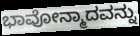
ಭಾವೋನ್ಮಾದವನ್ನು